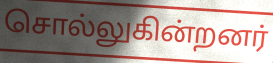
சொல்லுகின்றனர்